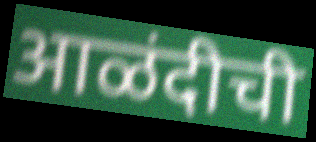
आळंदीची